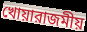
খোয়ারাজমীয়